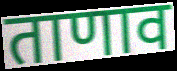
ताणाव